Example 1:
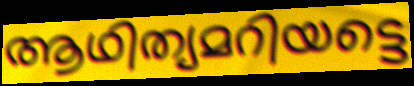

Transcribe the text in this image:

ആഥിത്യമറിയട്ടെ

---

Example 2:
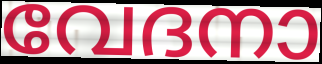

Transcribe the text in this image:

വേദനാ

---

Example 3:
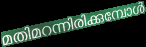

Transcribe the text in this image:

മതിമറന്നിരിക്കുമ്പോൾ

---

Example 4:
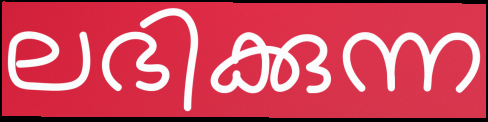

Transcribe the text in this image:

ലഭിക്കുന്ന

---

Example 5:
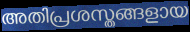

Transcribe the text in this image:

അതിപ്രശസ്തങ്ങളായ